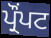
ਪ੍ਰੌੰਪਟ